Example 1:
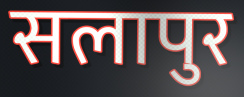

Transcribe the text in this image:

सलापुर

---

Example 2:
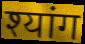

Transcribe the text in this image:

श्यांग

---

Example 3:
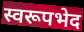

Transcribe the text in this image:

स्वरूपभेद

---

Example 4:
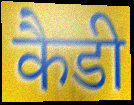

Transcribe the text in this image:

कैडी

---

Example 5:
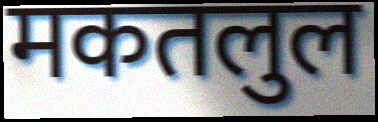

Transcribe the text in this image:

मकतलुल